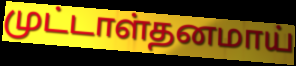
முட்டாள்தனமாய்